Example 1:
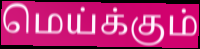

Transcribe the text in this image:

மெய்க்கும்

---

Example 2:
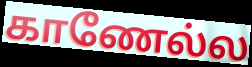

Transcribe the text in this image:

காணேல்ல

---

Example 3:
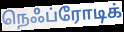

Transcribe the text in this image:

நெஃப்ரோடிக்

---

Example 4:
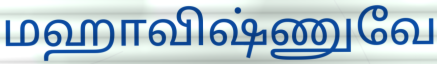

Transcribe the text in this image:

மஹாவிஷ்ணுவே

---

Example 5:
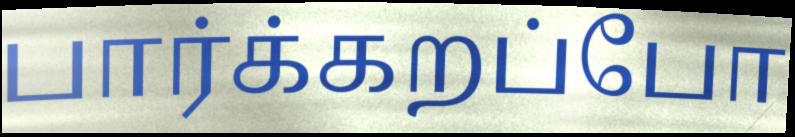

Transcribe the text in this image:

பார்க்கறப்போ